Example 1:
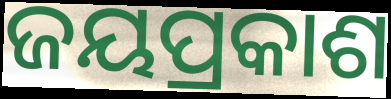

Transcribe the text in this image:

ଜୟପ୍ରକାଶ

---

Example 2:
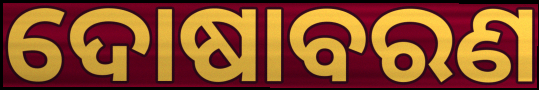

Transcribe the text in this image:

ଦୋଷାବରଣ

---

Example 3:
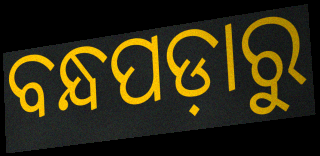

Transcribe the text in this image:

ବନ୍ଧପଡ଼ାରୁ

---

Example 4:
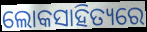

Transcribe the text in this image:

ଲୋକସାହିତ୍ୟରେ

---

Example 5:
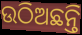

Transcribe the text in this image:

ଉଠିଅଛନ୍ତି